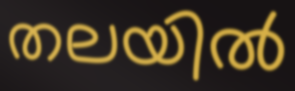
തലയിൽ